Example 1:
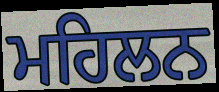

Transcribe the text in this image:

ਮਹਿਲਨ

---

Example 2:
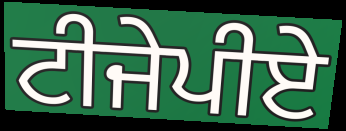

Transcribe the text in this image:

ਟੀਜੇਪੀਏ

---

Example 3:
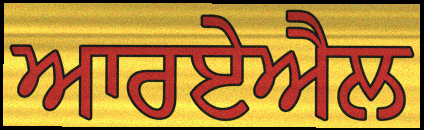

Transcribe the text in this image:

ਆਰਏਐਲ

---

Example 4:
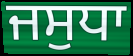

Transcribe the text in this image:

ਜਸੁਧਾ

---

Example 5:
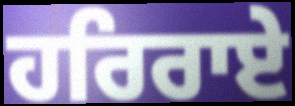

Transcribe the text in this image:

ਹਰਿਰਾਏ